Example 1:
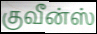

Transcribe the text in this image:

குவீன்ஸ்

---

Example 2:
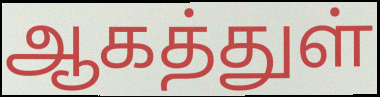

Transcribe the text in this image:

ஆகத்துள்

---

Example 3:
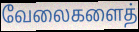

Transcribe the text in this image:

வேலைகளைத்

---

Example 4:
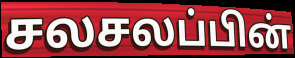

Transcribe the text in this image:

சலசலப்பின்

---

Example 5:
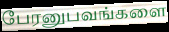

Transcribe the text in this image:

பேரனுபவங்களை